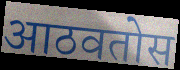
आठवतोस